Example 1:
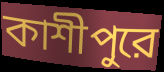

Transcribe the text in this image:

কাশীপুরে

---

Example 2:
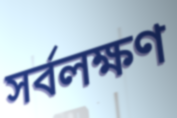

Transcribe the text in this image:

সর্বলক্ষণ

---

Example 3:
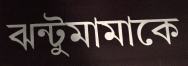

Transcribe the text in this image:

ঝন্টুমামাকে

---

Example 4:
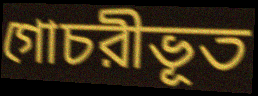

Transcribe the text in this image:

গোচরীভূত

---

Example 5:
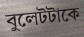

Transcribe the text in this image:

বুলেটটাকে